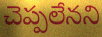
చెప్పలేనని